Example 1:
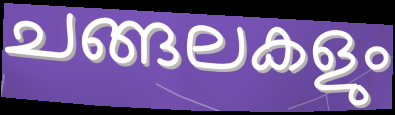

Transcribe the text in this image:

ചങ്ങലകളും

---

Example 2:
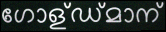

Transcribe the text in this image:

ഗോള്ഡ്മാന്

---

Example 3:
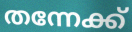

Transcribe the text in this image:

തന്നേക്ക്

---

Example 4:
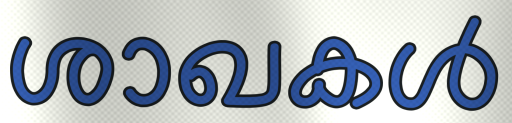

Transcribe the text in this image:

ശാഖകൾ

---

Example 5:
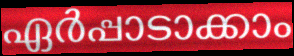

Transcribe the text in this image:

ഏർപ്പാടാക്കാം